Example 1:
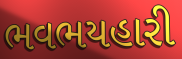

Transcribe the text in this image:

ભવભયહારી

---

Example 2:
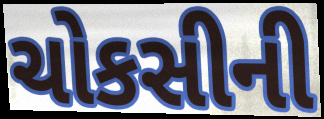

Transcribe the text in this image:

ચોકસીની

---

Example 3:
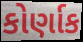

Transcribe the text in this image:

કોર્ણાક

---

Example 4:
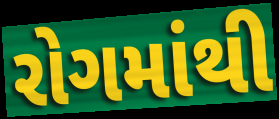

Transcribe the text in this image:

રોગમાંથી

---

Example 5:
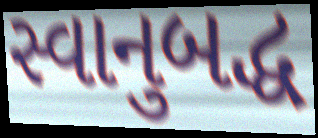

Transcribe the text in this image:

સ્વાનુબદ્ધ